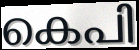
കെപി